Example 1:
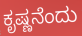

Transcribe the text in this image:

ಕೃಷ್ಣನೆಂದು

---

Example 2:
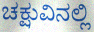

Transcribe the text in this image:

ಚಕ್ಷುವಿನಲ್ಲಿ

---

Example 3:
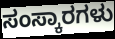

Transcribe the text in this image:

ಸಂಸ್ಕಾರಗಳು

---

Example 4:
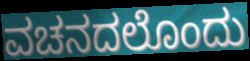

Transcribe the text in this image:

ವಚನದಲೊಂದು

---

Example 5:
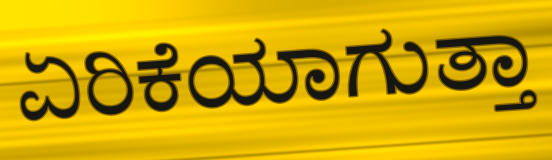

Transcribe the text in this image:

ಏರಿಕೆಯಾಗುತ್ತಾ